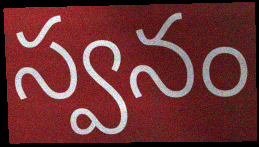
స్వనం